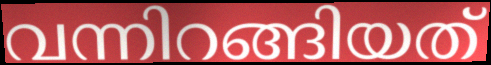
വന്നിറങ്ങിയത്